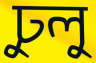
ঢুলু